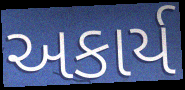
અકાર્ય